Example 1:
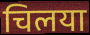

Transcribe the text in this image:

चिलया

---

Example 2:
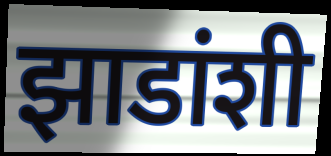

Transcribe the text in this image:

झाडांशी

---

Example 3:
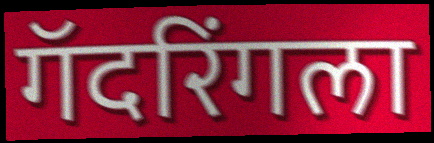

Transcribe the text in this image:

गॅदरिंगला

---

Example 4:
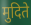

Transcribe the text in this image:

मुदिते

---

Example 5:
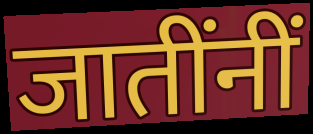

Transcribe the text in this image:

जातींनीं